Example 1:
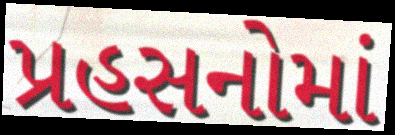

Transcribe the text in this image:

પ્રહસનોમાં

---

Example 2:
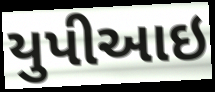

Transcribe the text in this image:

યુપીઆઇ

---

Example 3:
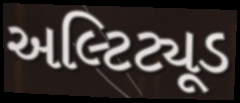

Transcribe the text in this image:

અલ્ટિટ્યૂડ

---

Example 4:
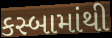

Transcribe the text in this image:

કસ્બામાંથી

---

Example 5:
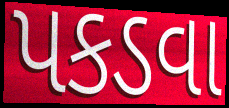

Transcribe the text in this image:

પકડવા